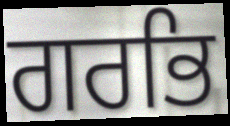
ਗਰਭਿ